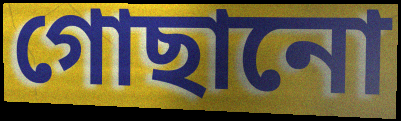
গোছানো